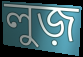
লুজ়